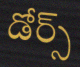
డోర్స్